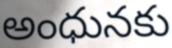
అంధునకు